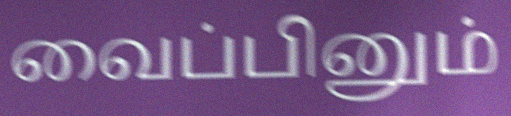
வைப்பினும்